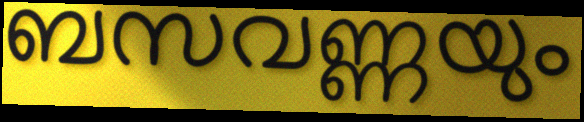
ബസവണ്ണയും